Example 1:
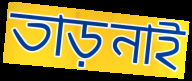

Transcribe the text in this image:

তাড়নাই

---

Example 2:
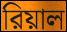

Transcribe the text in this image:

রিয়াল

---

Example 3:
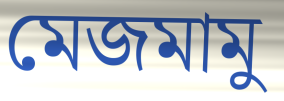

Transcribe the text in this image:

মেজমামু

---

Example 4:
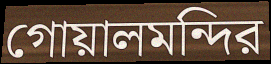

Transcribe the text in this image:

গোয়ালমন্দির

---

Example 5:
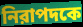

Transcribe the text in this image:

নিরাপদকে